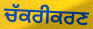
ਚੱਕਰੀਕਰਣ